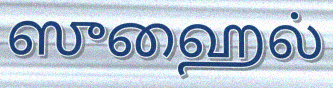
ஸுஹைல்